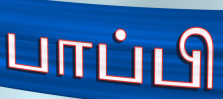
பாப்பி